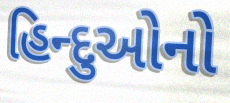
હિન્દુઓનો